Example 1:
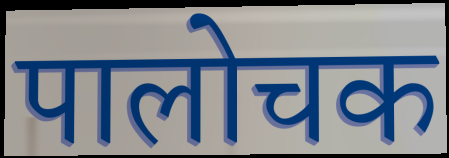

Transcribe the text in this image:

पालोचक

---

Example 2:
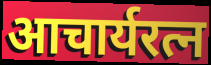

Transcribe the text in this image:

आचार्यरत्न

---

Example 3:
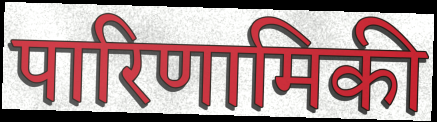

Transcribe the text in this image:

पारिणामिकी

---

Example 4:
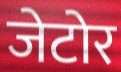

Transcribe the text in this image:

जेटोर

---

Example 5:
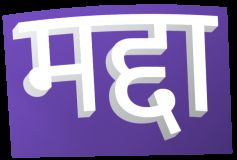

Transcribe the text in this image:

मद्दा